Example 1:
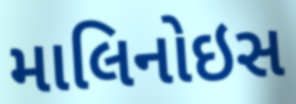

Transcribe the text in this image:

માલિનોઇસ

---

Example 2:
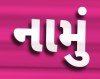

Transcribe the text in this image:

નામું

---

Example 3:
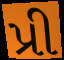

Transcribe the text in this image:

પ્રી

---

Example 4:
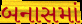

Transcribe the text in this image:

બનાસમાં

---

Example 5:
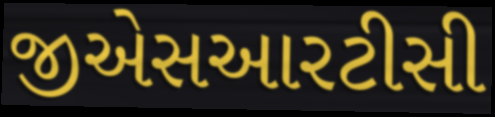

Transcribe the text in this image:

જીએસઆરટીસી